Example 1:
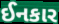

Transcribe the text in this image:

ઈનકાર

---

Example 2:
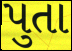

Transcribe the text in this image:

પુતા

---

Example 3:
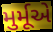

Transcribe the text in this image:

મુર્મૂએ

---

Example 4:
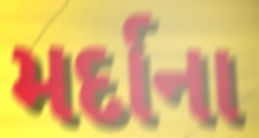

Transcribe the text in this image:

મર્દાના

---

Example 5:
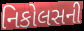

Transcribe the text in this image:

નિકોલસની